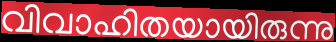
വിവാഹിതയായിരുന്നു